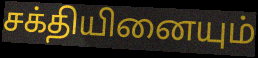
சக்தியினையும்